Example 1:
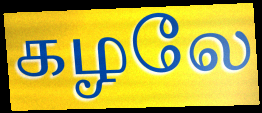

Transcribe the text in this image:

கழலே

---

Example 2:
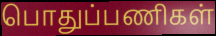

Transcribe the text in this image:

பொதுப்பணிகள்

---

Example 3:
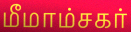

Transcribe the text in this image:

மீமாம்சகர்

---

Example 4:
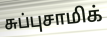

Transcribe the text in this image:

சுப்புசாமிக்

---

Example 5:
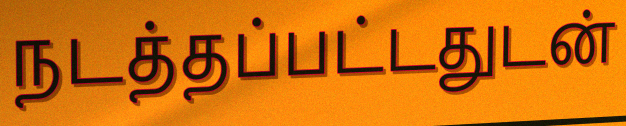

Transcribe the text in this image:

நடத்தப்பட்டதுடன்